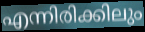
എന്നിരിക്കിലും